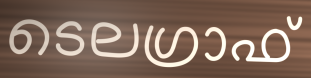
ടെലഗ്രാഫ്